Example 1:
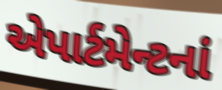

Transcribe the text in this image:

એપાર્ટમેન્ટનાં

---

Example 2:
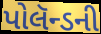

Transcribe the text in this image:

પોલૅન્ડની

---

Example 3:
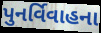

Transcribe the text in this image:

પુનર્વિવાહના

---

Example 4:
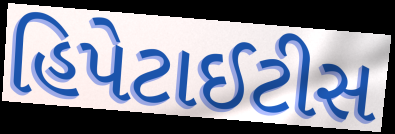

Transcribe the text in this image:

હિપેટાઈટીસ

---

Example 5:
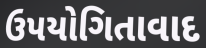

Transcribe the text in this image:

ઉપયોગિતાવાદ